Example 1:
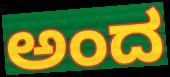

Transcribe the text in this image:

ಅಂದ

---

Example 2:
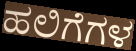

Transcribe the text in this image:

ಹಲಿಗೆಗಳ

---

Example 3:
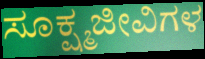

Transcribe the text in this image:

ಸೂಕ್ಷ್ಮಜೀವಿಗಳ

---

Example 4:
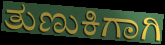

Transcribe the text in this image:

ತುಣುಕಿಗಾಗಿ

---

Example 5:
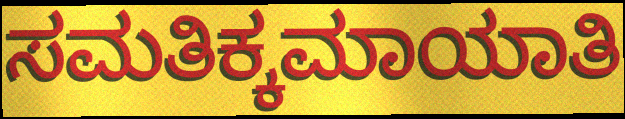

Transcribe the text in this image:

ಸಮತಿಕ್ಕಮಾಯಾತಿ